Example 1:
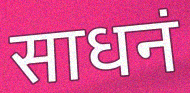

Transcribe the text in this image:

साधनं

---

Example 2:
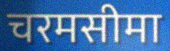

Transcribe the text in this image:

चरमसीमा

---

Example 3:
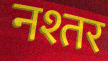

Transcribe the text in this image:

नश्तर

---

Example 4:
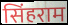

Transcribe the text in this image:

सिंहराम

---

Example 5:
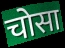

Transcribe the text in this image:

चोसा